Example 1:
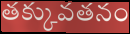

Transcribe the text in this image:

తక్కువతనం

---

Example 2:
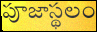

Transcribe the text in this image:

పూజాస్థలం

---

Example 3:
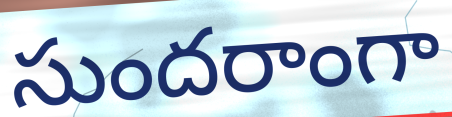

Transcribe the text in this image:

సుందరాంగా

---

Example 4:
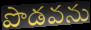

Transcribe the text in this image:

పొడవను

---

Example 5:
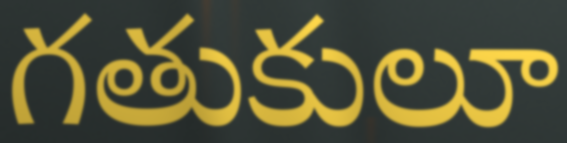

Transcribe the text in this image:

గతుకులూ